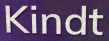
Kindt